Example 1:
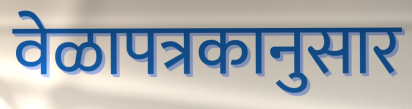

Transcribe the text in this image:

वेळापत्रकानुसार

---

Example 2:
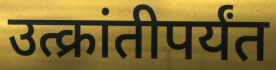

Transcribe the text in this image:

उत्क्रांतीपर्यंत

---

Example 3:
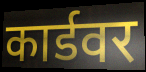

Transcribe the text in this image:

कार्डवर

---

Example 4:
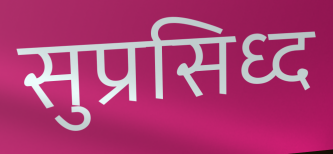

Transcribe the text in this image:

सुप्रसिध्द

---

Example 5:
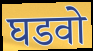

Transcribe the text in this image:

घडवो